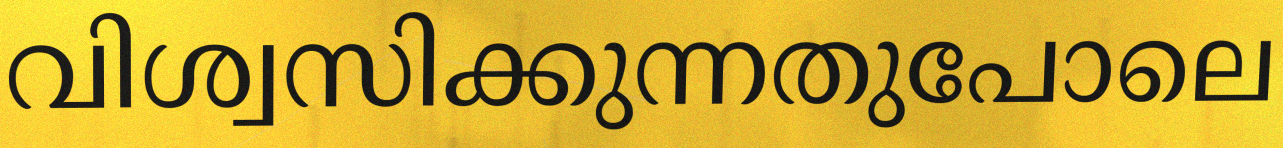
വിശ്വസിക്കുന്നതുപോലെ